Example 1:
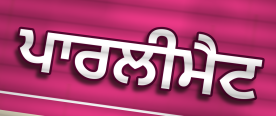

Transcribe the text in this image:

ਪਾਰਲੀਮੈਟ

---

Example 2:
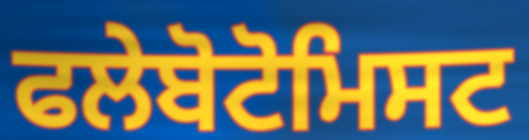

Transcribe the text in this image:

ਫਲੇਬੋਟੋਮਿਸਟ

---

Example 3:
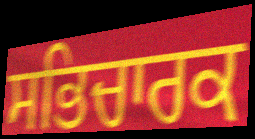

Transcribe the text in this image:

ਸਭਿਚਾਰਕ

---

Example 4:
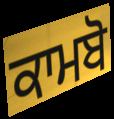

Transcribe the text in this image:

ਕਾਮਬੋ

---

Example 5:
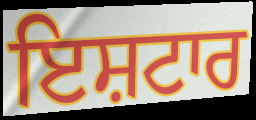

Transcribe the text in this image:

ਇਸ਼ਟਾਰ